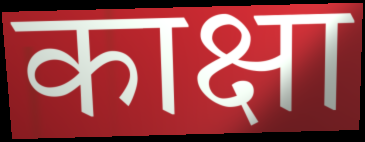
काक्षा